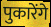
पुकारेंगे